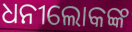
ଧନୀଲୋକଙ୍କ